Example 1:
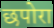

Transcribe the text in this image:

छपोरा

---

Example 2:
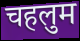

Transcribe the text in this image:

चहलुम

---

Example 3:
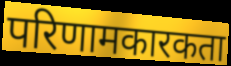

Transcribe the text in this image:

परिणामकारकता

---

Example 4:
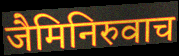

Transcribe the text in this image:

जैमिनिरुवाच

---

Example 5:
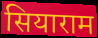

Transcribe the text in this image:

सियाराम